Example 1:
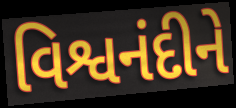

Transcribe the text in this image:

વિશ્વનંદીને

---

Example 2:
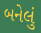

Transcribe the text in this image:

બનેલું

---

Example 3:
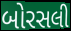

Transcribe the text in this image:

બોરસલી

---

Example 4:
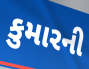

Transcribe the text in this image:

કુમારની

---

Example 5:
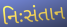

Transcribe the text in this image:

નિઃસંતાન